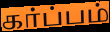
கர்ப்பம்